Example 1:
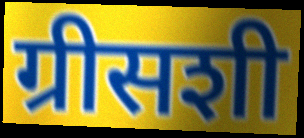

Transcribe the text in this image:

ग्रीसशी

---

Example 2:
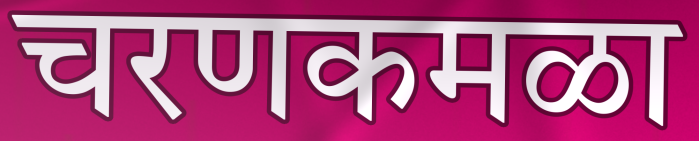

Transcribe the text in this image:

चरणकमळा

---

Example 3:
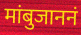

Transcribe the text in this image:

मांबुजाननं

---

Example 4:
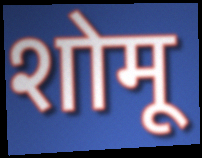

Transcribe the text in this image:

शोमू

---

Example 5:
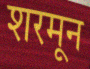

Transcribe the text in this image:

शरमून